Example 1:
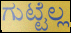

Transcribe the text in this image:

ಗುಟ್ಟೆಲ್ಲ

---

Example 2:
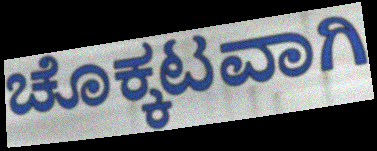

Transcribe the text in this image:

ಚೊಕ್ಕಟವಾಗಿ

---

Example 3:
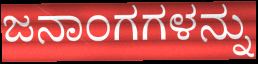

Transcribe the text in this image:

ಜನಾಂಗಗಳನ್ನು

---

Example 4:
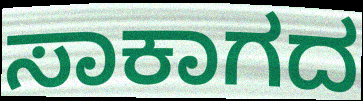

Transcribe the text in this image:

ಸಾಕಾಗದ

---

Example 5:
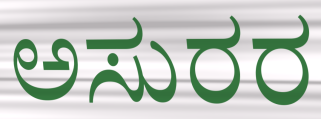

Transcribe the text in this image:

ಅಸುರರ